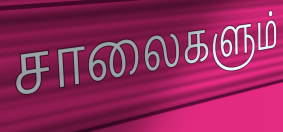
சாலைகளும்